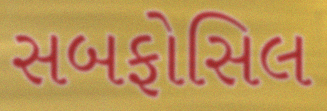
સબફોસિલ